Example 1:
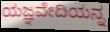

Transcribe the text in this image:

ಯಜ್ಞವೇದಿಯನ್ನ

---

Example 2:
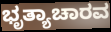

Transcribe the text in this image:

ಭೃತ್ಯಾಚಾರವ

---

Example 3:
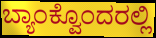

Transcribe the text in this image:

ಬ್ಯಾಂಕ್ವೊಂದರಲ್ಲಿ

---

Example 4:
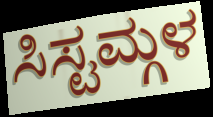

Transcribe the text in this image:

ಸಿಸ್ಟಮ್ಗಳ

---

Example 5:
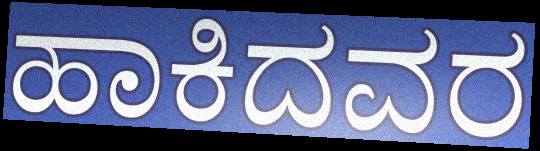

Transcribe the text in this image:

ಹಾಕಿದವರ